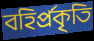
বহির্প্রকৃতি